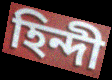
হিন্দী